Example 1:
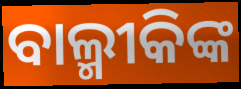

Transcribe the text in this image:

ବାଲ୍ମୀକିଙ୍କ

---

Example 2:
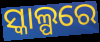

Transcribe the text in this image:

ସ୍କାଲ୍ପରେ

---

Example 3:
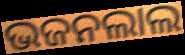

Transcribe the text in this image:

ଭଜନଲାଲ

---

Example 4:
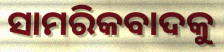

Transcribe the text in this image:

ସାମରିକବାଦକୁ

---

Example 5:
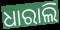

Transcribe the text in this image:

ଧାରାଲି